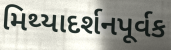
મિથ્યાદર્શનપૂર્વક